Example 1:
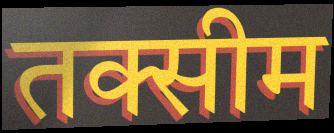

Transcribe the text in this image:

तक्सीम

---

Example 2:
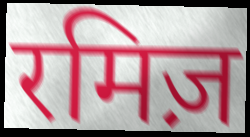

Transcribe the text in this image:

रमिज़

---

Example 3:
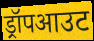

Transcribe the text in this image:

ड्रॉपआउट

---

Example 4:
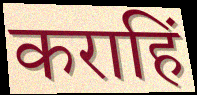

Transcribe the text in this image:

कराहिं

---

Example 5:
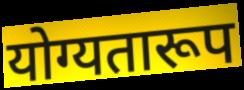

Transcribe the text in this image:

योग्यतारूप